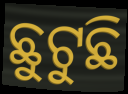
ଛୁଟୁଛି